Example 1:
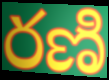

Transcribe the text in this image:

రణి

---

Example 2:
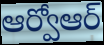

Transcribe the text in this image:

ఆర్వోఆర్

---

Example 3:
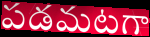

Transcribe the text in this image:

పడమటగా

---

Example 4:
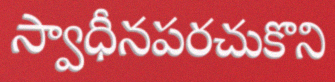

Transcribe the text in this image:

స్వాధీనపరచుకొని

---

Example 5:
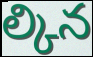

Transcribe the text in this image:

ల్కిన